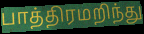
பாத்திரமறிந்து